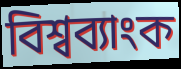
বিশ্বব্যাংক